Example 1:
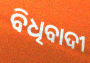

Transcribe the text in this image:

ବିଧିବାଦୀ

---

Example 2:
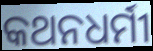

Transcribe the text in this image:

କଥନଧର୍ମୀ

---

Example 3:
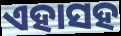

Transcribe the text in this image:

ଏହାସହ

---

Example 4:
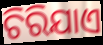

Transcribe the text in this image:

ଚିରିଯାଏ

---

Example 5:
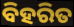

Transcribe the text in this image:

ବିହରିତ